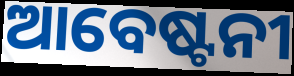
ଆବେଷ୍ଟନୀ